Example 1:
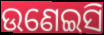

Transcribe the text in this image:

ଉଣେଇସି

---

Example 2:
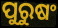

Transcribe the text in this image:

ପୁରୁଷଂ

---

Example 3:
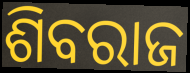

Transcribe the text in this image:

ଶିବରାଜ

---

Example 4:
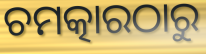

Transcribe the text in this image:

ଚମତ୍କାରଠାରୁ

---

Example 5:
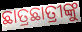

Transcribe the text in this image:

ଛାତ୍ରଛାତ୍ରୀଙ୍କୁ